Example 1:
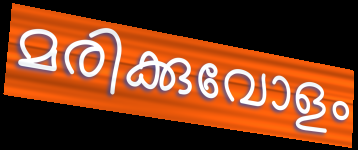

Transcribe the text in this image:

മരിക്കുവോളം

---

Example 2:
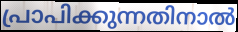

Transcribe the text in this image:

പ്രാപിക്കുന്നതിനാൽ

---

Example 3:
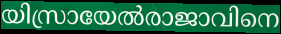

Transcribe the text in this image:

യിസ്രായേൽരാജാവിനെ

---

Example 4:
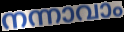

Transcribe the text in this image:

നന്നാവാം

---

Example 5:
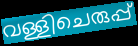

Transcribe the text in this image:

വള്ളിചെരുപ്പ്